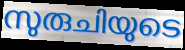
സുരുചിയുടെ